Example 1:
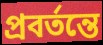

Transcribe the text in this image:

প্রবর্তন্তে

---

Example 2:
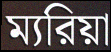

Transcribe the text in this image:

ম্যরিয়া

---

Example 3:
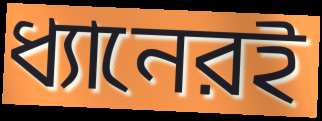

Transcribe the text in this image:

ধ্যানেরই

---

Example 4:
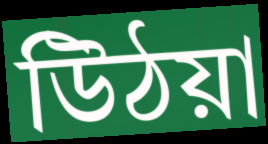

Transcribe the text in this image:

উিঠয়া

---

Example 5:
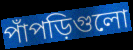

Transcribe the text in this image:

পাঁপড়িগুলো